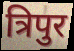
त्रिपुर